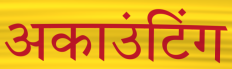
अकाउंटिंग